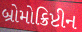
બ્રોમોક્રિપ્ટીન